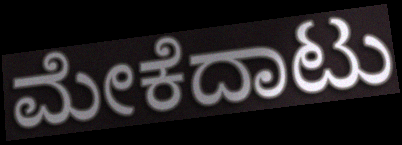
ಮೇಕೆದಾಟು